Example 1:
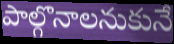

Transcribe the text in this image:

పాల్గొనాలనుకునే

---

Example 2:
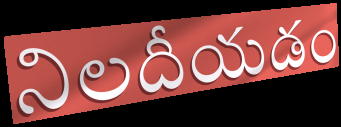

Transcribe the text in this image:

నిలదీయడం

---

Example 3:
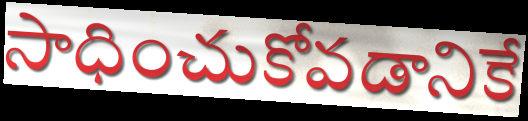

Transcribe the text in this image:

సాధించుకోవడానికే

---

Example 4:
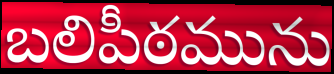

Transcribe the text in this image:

బలిపీఠమును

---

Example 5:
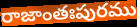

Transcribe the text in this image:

రాజాంతఃపురము